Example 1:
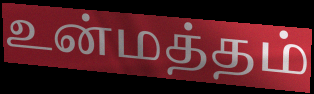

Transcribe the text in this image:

உன்மத்தம்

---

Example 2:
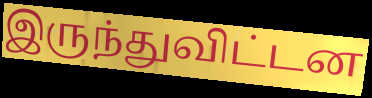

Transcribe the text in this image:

இருந்துவிட்டன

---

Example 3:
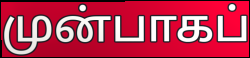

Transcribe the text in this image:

முன்பாகப்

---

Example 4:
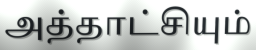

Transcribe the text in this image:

அத்தாட்சியும்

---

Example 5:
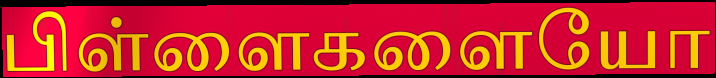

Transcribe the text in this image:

பிள்ளைகளையோ